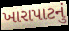
ખારાપાટનું